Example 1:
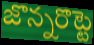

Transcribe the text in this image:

జొన్నరొట్టె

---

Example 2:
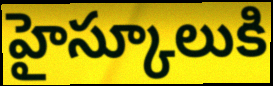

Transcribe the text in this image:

హైస్కూలుకి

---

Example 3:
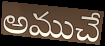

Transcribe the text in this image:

అముచే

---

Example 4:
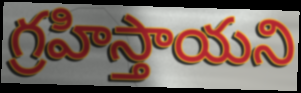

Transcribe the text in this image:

గ్రహిస్తాయని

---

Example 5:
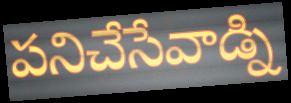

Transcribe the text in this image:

పనిచేసేవాడ్ని